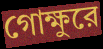
গোক্ষুরে